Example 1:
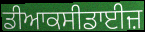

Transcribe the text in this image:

ਡੀਆਕਸੀਡਾਈਜ਼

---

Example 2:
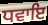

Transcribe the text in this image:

ਧਵਾਇ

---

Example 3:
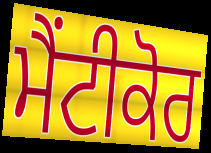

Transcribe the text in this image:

ਮੈਂਟੀਕੋਰ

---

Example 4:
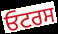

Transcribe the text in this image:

ਓਟਰਸ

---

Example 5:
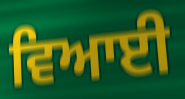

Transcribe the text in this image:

ਵਿਆਈ